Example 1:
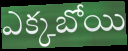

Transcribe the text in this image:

ఎక్కబోయి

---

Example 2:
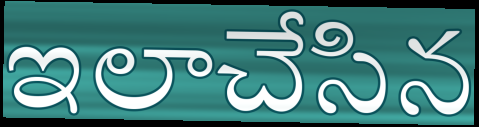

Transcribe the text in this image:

ఇలాచేసిన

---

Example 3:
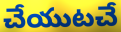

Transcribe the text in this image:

చేయుటచే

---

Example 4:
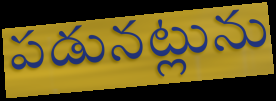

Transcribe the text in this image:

పడునట్లును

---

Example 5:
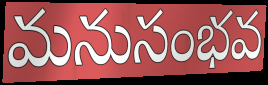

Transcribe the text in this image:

మనుసంభవ